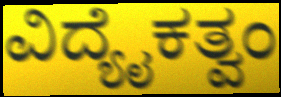
ವಿದ್ಯೈಕತ್ವಂ